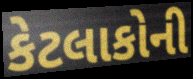
કેટલાકોની